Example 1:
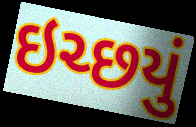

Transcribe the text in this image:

ઇચ્છયું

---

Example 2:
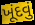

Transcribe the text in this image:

ખૂંદવું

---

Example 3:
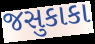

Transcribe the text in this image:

જસુકાકા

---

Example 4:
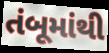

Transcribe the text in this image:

તંબૂમાંથી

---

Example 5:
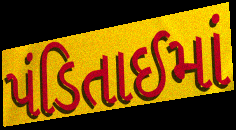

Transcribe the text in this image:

પંડિતાઈમાં